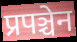
प्रपञ्चेन